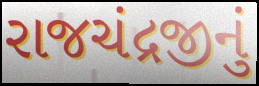
રાજચંદ્રજીનું